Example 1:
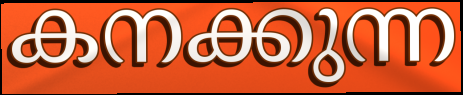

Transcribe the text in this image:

കനക്കുന്ന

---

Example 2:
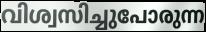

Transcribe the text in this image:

വിശ്വസിച്ചുപോരുന്ന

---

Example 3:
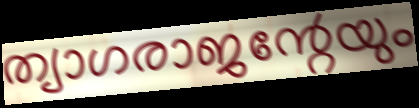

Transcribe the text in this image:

ത്യാഗരാജന്റേയും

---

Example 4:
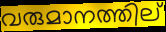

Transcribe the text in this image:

വരുമാനത്തില്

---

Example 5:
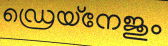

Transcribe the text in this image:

ഡ്രെയ്നേജും